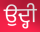
ਉਦ੍ਹੀ